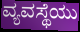
ವ್ಯವಸ್ಥೆಯು